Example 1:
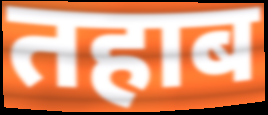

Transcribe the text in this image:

तहाब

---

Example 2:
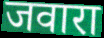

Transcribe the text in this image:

जवारा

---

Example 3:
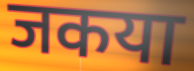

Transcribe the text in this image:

जकया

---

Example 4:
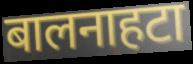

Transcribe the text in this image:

बालनाहटा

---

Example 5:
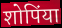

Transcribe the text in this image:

शोपिंया